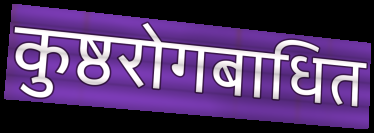
कुष्ठरोगबाधित